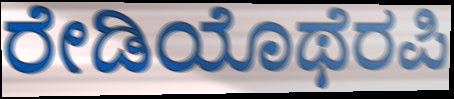
ರೇಡಿಯೊಥೆರಪಿ